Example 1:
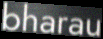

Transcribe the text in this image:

bharau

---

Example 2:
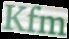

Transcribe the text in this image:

Kfm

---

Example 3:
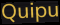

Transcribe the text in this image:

Quipu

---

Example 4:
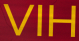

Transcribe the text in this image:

VIH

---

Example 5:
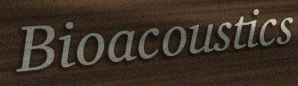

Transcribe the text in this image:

Bioacoustics